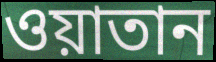
ওয়াতান